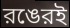
রঙেরই